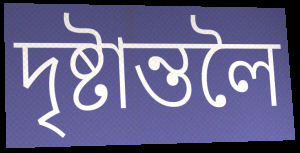
দৃষ্টান্তলৈ